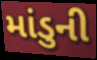
માંડુની